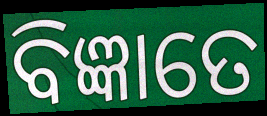
ବିଜ୍ଞାତେ